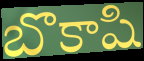
బొకాషి